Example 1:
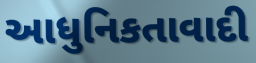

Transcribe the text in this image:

આધુનિકતાવાદી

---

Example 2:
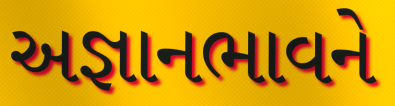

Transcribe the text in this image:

અજ્ઞાનભાવને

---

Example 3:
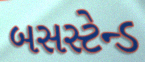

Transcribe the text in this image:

બસસ્ટેન્ડ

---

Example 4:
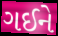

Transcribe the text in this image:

ગઈને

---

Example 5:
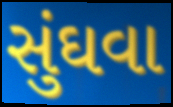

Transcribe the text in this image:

સુંઘવા